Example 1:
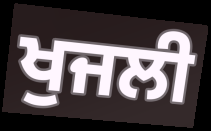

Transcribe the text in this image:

ਖੁਜਲੀ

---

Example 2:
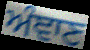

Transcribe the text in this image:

ਅੰਞਾਣ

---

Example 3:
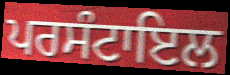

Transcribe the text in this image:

ਪਰਸੰਟਾਇਲ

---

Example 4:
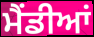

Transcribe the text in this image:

ਮੈਂਡੀਆਂ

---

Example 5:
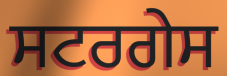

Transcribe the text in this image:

ਸਟਰਗੇਸ